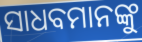
ସାଧବମାନଙ୍କୁ